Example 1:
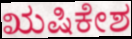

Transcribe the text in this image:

ಋಷಿಕೇಶ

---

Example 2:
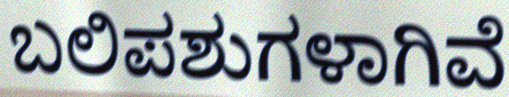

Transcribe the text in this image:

ಬಲಿಪಶುಗಳಾಗಿವೆ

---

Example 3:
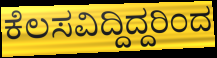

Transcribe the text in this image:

ಕೆಲಸವಿದ್ದಿದ್ದರಿಂದ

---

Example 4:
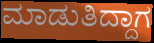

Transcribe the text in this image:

ಮಾಡುತಿದ್ದಾಗ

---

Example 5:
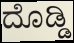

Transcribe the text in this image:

ದೊಡ್ಡಿ